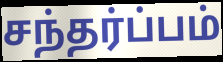
சந்தர்ப்பம்